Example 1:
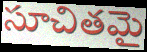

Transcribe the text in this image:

సూచితమై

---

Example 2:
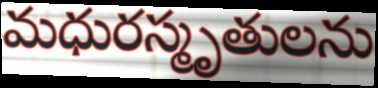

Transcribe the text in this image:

మధురస్మృతులను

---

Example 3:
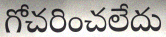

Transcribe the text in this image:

గోచరించలేదు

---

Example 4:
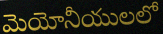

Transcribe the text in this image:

మెయోనీయులలో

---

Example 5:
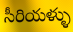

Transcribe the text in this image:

సీరియళ్ళు